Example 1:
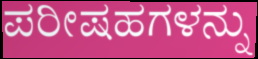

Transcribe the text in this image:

ಪರೀಷಹಗಳನ್ನು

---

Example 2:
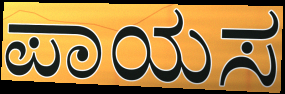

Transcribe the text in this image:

ಪಾಯಸ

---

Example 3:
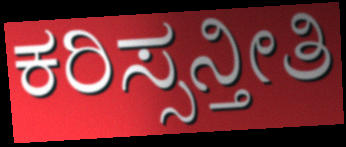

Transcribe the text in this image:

ಕರಿಸ್ಸನ್ತೀತಿ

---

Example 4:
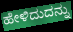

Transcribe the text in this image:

ಹೇಳಿದುದನ್ನು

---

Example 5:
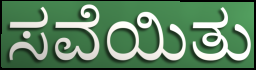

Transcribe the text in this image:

ಸವೆಯಿತು